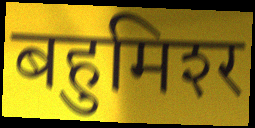
बहुमिश्र